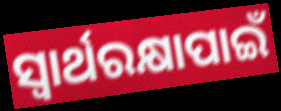
ସ୍ବାର୍ଥରକ୍ଷାପାଇଁ